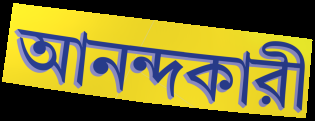
আনন্দকারী